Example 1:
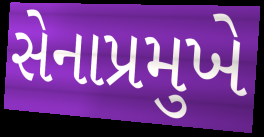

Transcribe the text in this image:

સેનાપ્રમુખે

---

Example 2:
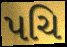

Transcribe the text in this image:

પચિ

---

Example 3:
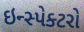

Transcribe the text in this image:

ઇન્સ્પેક્ટરો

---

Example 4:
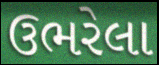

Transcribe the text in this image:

ઉભરેલા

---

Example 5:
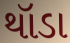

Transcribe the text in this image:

થૉડા